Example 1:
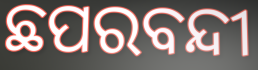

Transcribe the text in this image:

ଛପରବନ୍ଦୀ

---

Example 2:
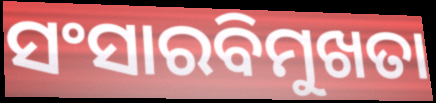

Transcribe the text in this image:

ସଂସାରବିମୁଖତା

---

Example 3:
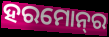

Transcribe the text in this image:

ହରମୋନ୍‍ର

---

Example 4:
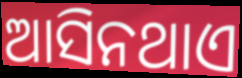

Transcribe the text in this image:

ଆସିନଥାଏ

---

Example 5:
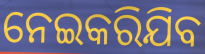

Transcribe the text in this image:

ନେଇକରିଯିବ